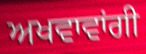
ਅਖਵਾਵਾਂਗੀ